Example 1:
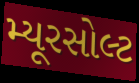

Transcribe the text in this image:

મ્યૂરસોલ્ટ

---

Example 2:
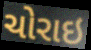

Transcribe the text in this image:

ચોરાઇ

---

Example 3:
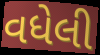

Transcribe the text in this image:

વધેલી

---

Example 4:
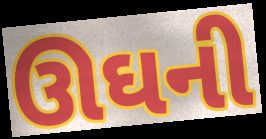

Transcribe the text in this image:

ઊઘની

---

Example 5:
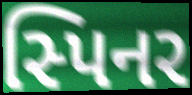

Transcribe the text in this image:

સ્પિનર